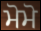
ਮੋਮੋ